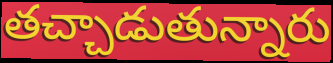
తచ్చాడుతున్నారు